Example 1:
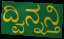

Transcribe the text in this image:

ದ್ವಿನ್ನನ್ತಿ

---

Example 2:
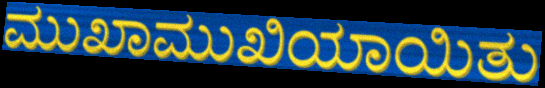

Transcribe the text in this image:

ಮುಖಾಮುಖಿಯಾಯಿತು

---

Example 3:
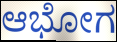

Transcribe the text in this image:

ಆಭೋಗ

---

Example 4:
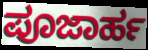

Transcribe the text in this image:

ಪೂಜಾರ್ಹ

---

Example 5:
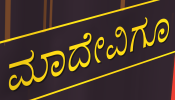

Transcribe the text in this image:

ಮಾದೇವಿಗೂ